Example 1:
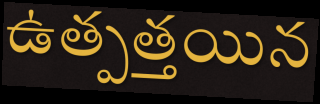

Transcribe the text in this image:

ఉత్పత్తయిన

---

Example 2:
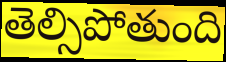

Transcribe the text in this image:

తెల్సిపోతుంది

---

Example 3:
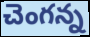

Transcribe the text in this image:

చెంగన్న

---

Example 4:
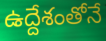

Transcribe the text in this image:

ఉద్దేశంతోనే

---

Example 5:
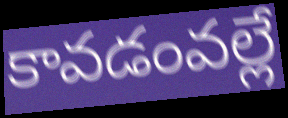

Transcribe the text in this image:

కావడంవల్లే